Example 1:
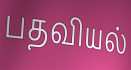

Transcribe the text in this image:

பதவியல்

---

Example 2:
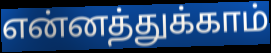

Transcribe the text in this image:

என்னத்துக்காம்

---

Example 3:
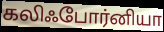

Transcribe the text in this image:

கலிஃபோர்னியா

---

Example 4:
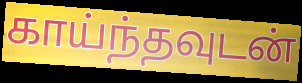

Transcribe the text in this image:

காய்ந்தவுடன்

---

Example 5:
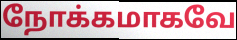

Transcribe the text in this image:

நோக்கமாகவே